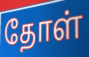
தோள்